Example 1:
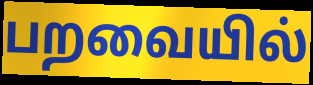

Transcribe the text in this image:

பறவையில்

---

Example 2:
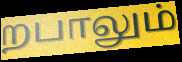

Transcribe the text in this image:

றபாலும்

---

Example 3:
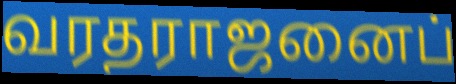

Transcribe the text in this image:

வரதராஜனைப்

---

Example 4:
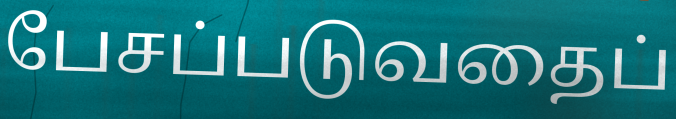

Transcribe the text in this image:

பேசப்படுவதைப்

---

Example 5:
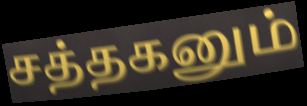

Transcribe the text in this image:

சத்தகனும்